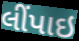
લીંપાઇ